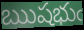
ఋషభుఁ